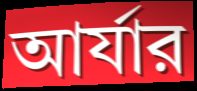
আর্যার